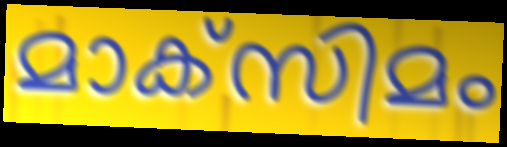
മാക്‌സിമം